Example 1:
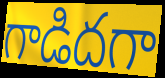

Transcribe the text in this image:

గాడిదగా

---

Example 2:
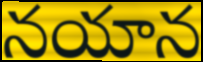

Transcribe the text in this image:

నయాన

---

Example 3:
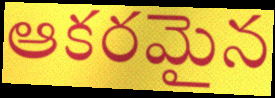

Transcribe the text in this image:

ఆకరమైన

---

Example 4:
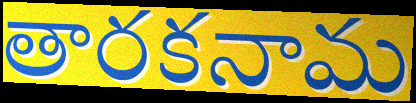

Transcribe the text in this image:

తారకనామ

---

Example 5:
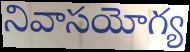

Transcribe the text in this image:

నివాసయోగ్య